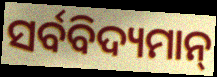
ସର୍ବବିଦ୍ୟମାନ୍